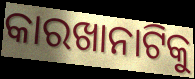
କାରଖାନାଟିକୁ